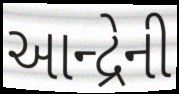
આન્દ્રેની